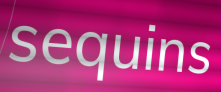
sequins